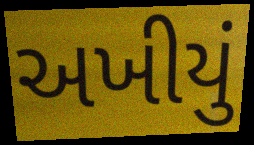
અખીયું